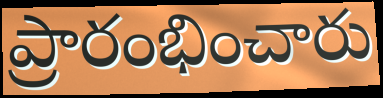
ప్రారంభించారు